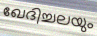
ഖേദിച്ചലയും